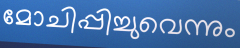
മോചിപ്പിച്ചുവെന്നും